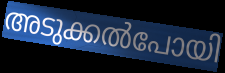
അടുക്കൽപോയി